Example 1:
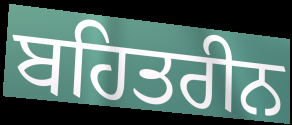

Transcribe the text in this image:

ਬਹਿਤਰੀਨ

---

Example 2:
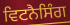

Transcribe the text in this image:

ਵਿਟਨੈਸਿੰਗ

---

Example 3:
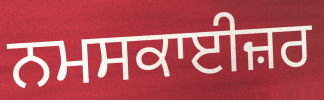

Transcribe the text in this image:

ਨਮਸਕਾਈਜ਼ਰ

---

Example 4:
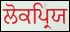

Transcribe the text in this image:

ਲੋਕਪ੍ਰਿਯ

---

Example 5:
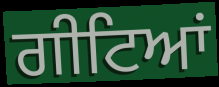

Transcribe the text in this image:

ਗੀਟਿਆਂ